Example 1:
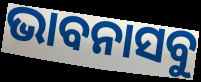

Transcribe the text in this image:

ଭାବନାସବୁ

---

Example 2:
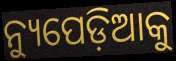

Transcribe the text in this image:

ନ୍ୟୁପେଡ଼ିଆକୁ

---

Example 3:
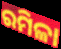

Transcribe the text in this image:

ରମିଳା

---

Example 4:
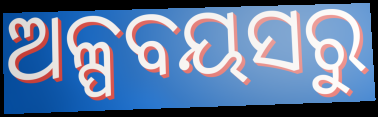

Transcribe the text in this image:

ଅଳ୍ପବୟସରୁ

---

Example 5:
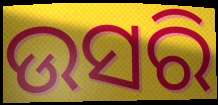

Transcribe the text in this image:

ଉସରି